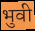
भुवी